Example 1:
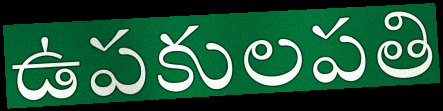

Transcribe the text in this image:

ఉపకులపతి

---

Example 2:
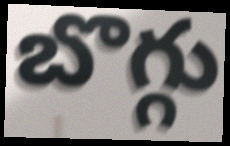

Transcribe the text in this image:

బొగ్గు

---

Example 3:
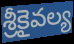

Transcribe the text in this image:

శ్రీకైవల్య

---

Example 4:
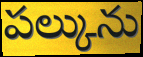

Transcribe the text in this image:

పల్కును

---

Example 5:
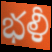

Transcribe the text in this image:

భళీ